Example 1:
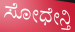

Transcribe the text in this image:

ಸೋಧೇನ್ತಿ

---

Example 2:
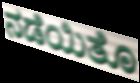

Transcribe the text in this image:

ನಡೆಯಿತೊ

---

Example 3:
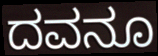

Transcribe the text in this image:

ದವನೂ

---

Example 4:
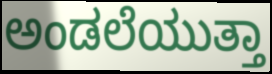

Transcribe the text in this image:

ಅಂಡಲೆಯುತ್ತಾ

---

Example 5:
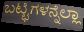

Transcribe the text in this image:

ಬಟ್ಟೆಗಳನ್ನೆಲ್ಲಾ